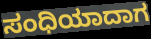
ಸಂಧಿಯಾದಾಗ